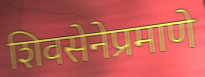
शिवसेनेप्रमाणे